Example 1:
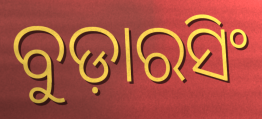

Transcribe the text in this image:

ବୁଡ଼ାରସିଂ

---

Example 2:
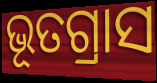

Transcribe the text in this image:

ଭୂତଗ୍ରାସ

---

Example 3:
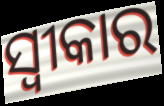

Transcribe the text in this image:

ସ୍ବୀକାର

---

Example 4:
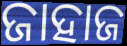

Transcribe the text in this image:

ଜାହାଜ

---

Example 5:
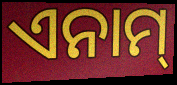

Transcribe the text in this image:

ଏନାମ୍